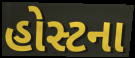
હોસ્ટના